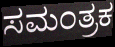
ಸಮಂತ್ರಕ